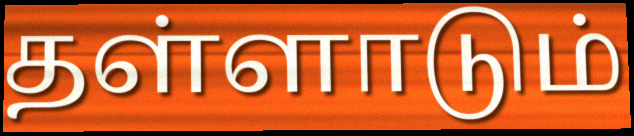
தள்ளாடும்